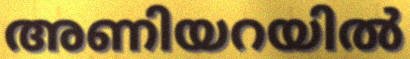
അണിയറയിൽ